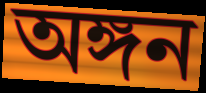
অঙ্গন